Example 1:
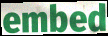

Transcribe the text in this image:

embed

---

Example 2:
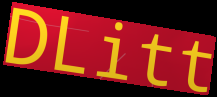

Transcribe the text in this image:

DLitt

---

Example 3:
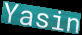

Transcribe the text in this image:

Yasin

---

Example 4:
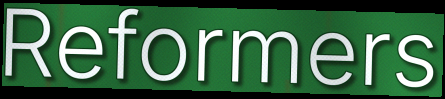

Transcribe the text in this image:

Reformers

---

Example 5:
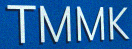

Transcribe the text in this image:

TMMK